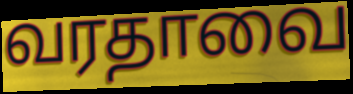
வரதாவை